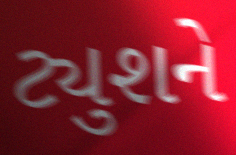
ટ્યુશને